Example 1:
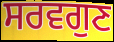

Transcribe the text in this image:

ਸਰਵਗੁਣ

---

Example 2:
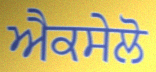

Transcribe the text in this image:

ਐਕਸੇਲੋ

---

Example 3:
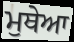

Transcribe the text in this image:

ਮੁਥੇਆ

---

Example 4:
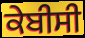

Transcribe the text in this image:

ਕੇਬੀਸੀ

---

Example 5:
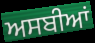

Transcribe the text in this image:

ਅਸਬੀਆਂ